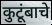
कुटूंबाचे